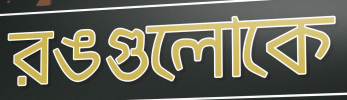
রঙগুলোকে